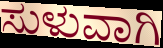
ಸುಳುವಾಗಿ